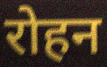
रोहन